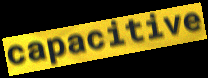
capacitive